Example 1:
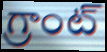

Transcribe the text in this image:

గ్రాంట్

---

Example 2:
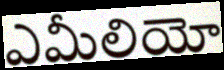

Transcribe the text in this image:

ఎమీలియో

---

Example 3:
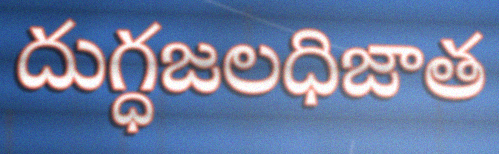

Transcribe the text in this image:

దుగ్ధజలధిజాత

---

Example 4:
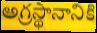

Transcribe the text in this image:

అగ్రస్థానానికి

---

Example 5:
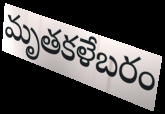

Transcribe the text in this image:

మృతకళేబరం